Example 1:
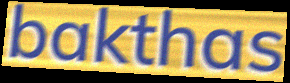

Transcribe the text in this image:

bakthas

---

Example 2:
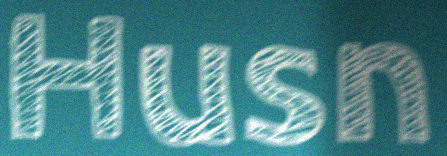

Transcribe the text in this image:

Husn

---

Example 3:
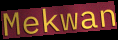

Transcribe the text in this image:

Mekwan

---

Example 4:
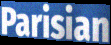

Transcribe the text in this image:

Parisian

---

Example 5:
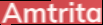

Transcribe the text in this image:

Amtrita